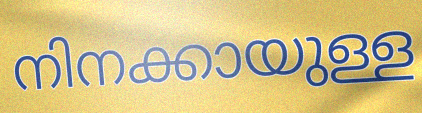
നിനക്കായുള്ള